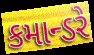
કમાન્ડરે